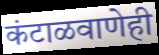
कंटाळवाणेही